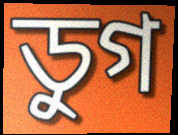
ডুগ